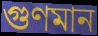
গুণমান